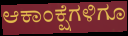
ಆಕಾಂಕ್ಷೆಗಳಿಗೂ